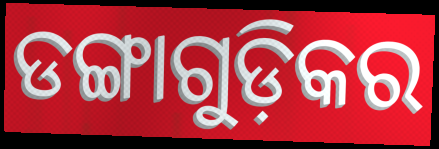
ଡଙ୍ଗାଗୁଡ଼ିକର